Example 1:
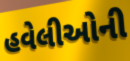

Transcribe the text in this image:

હવેલીઓની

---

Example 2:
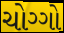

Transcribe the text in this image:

ચોગ્ગો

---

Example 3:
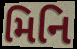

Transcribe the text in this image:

મિનિ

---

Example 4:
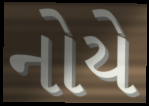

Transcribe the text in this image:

નોયે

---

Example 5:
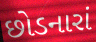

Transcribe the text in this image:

છોડનારાં